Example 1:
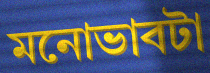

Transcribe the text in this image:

মনোভাবটা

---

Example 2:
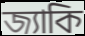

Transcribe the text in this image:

জ্যাকি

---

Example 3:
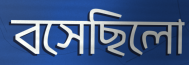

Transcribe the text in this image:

বসেছিলো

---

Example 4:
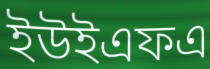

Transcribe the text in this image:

ইউইএফএ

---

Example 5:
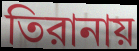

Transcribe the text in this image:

তিরানায়